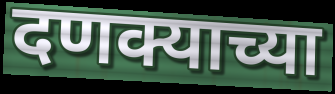
दणक्याच्या